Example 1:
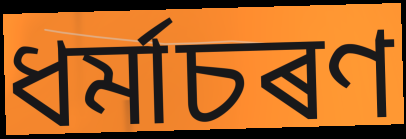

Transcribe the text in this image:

ধৰ্মাচৰণ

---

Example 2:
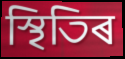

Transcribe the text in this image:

স্থিতিৰ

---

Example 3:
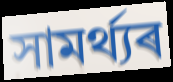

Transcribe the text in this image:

সামৰ্থ্যৰ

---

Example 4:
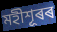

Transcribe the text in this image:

মহীশূৰৰ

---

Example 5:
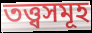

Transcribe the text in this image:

তত্ত্বসমূহ